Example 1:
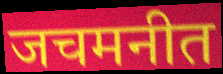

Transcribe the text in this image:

जचमनीत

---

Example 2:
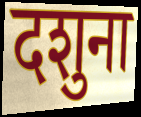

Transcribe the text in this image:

दशुना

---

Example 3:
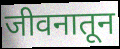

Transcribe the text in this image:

जीवनातून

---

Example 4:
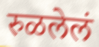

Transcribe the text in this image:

रुळलेलं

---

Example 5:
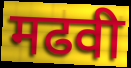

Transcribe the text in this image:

मढवी